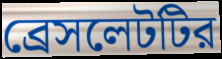
ব্রেসলেটটির